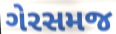
ગેરસમજ